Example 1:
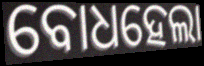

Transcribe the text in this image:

ବୋଧହେଲା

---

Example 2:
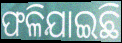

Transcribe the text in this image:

ଫଳିଯାଇଛି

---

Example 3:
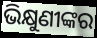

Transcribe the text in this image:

ଭିକ୍ଷୁଣୀଙ୍କର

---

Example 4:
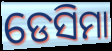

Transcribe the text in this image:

ଡେସିମା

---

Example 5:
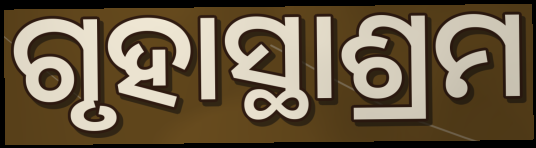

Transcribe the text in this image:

ଗୃହାସ୍ଥାଶ୍ରମ